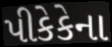
પીકેકેના